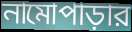
নামোপাড়ার